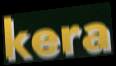
kera